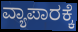
ವ್ಯಾಪಾರಕ್ಕೆ